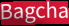
Bagcha